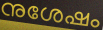
നുശേഷം